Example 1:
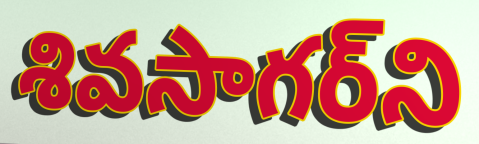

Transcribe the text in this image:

శివసాగర్‌ని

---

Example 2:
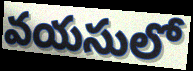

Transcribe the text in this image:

వయసులో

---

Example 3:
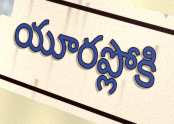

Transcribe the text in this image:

యూరప్లోకి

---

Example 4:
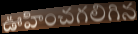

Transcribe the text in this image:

ఊహించగలిగిన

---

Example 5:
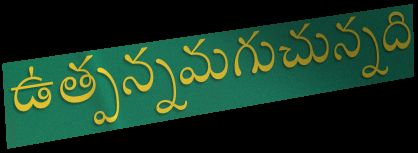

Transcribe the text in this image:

ఉత్పన్నమగుచున్నది